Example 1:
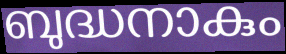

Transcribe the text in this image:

ബുദ്ധനാകും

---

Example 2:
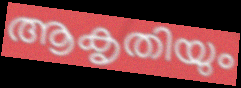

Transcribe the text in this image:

ആകൃതിയും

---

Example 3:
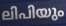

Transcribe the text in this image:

ലിപിയും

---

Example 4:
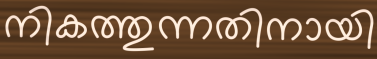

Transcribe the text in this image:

നികത്തുന്നതിനായി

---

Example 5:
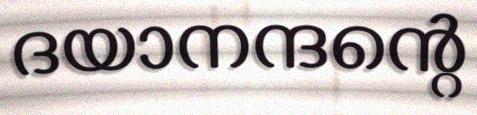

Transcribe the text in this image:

ദയാനന്ദന്റെ